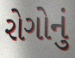
રોગોનું